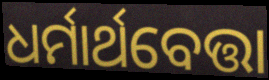
ଧର୍ମାର୍ଥବେତ୍ତା